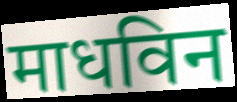
माधविन